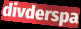
divderspa